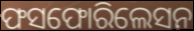
ଫସଫୋରିଲେସନ